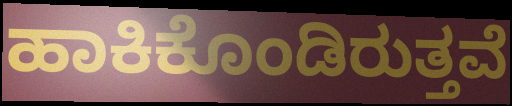
ಹಾಕಿಕೊಂಡಿರುತ್ತವೆ